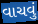
વાચવું